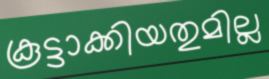
കൂട്ടാക്കിയതുമില്ല